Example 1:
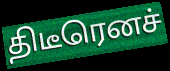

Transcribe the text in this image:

திடீரெனச்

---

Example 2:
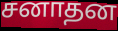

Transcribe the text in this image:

சனாதன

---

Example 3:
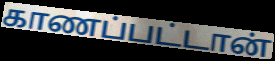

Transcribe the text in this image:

காணப்பட்டான்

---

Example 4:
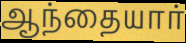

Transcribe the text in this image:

ஆந்தையார்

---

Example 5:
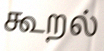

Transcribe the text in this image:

கூறல்